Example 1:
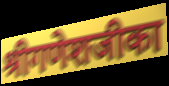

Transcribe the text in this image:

श्रीगणेशजीका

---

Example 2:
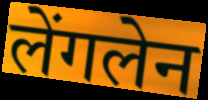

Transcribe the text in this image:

लेंगलेन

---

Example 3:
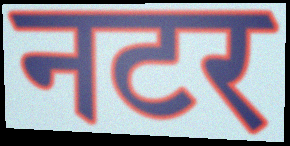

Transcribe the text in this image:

नटर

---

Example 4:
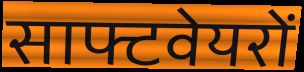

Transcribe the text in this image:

साफ्टवेयरों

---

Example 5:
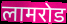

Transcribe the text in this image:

लामरोड